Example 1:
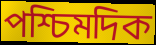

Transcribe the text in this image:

পশ্চিমদিক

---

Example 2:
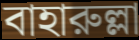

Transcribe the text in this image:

বাহারুল্লা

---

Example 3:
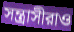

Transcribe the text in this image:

সন্ত্রাসীরাও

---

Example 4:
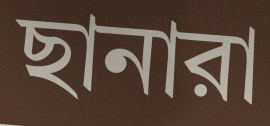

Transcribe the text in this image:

ছানারা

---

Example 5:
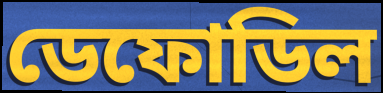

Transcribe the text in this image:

ডেফোডিল